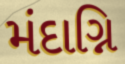
મંદાગ્નિ